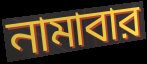
নামাবার